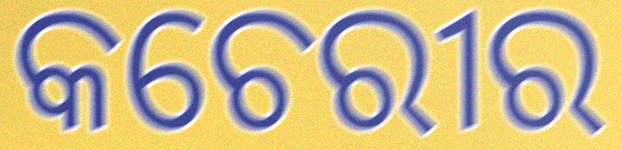
କଚେରୀର